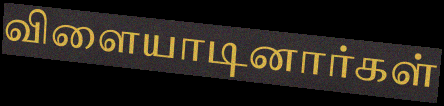
விளையாடினார்கள்